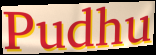
Pudhu